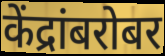
केंद्रांबरोबर